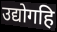
उद्योगहि